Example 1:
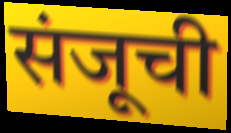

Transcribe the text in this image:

संजूची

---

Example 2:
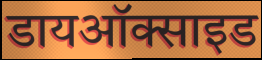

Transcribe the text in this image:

डायऑक्साइड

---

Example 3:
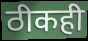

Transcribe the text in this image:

ठीकही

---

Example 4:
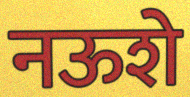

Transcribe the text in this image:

नऊशे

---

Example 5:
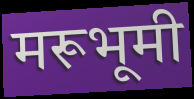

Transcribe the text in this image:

मरूभूमी